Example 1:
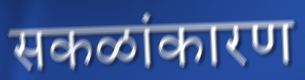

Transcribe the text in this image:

सकळांकारण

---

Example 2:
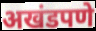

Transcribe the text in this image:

अखंडपणे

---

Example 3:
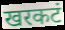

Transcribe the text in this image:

खरकटं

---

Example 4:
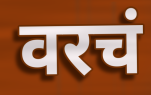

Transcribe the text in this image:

वरचं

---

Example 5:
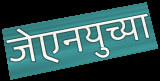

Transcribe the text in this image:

जेएनयुच्या